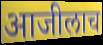
आजीलाच